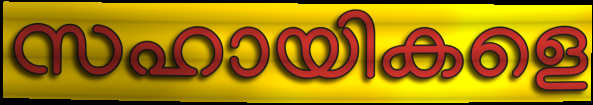
സഹായികളെ